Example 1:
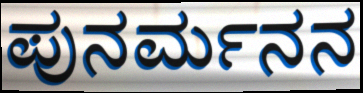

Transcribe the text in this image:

ಪುನರ್ಮನನ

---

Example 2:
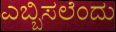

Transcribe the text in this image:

ಎಬ್ಬಿಸಲೆಂದು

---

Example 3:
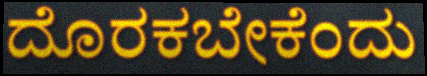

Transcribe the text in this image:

ದೊರಕಬೇಕೆಂದು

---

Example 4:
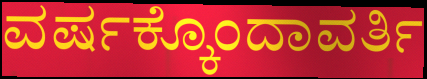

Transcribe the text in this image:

ವರ್ಷಕ್ಕೊಂದಾವರ್ತಿ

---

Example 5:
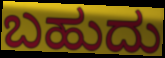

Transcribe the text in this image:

ಬಹುದು